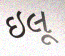
ઇલૂ